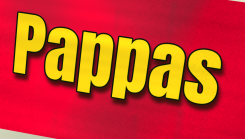
Pappas